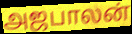
அஜபாலன்